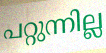
പറ്റുന്നില്ല